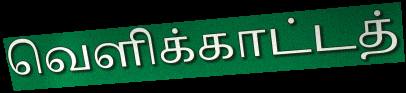
வெளிக்காட்டத்